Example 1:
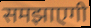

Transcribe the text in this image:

समझाएगी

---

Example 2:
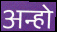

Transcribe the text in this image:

अन्हो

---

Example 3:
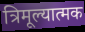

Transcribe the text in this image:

त्रिमूल्यात्मक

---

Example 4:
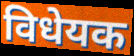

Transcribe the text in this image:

विधेयक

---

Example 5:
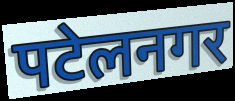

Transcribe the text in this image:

पटेलनगर